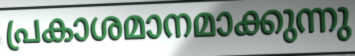
പ്രകാശമാനമാക്കുന്നു